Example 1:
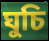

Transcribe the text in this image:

ঘুচি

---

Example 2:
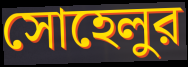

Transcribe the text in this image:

সোহেলুর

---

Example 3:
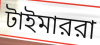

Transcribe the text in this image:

টাইমাররা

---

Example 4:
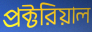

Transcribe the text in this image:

প্রক্টরিয়াল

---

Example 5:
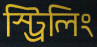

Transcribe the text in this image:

স্ট্রিলিং